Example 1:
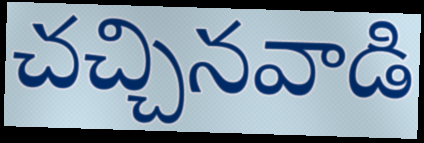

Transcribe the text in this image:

చచ్చినవాడి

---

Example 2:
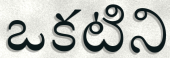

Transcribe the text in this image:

ఒకటిని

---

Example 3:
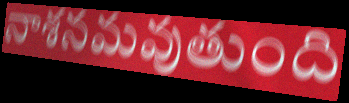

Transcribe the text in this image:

నాశనమవుతుంది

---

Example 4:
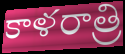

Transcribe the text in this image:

కాళరాత్రి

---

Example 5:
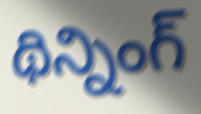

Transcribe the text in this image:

థిన్నింగ్